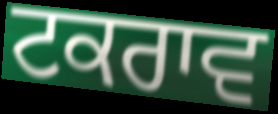
ਟਕਰਾਵ